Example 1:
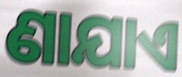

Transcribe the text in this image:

ଣାଯାଏ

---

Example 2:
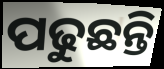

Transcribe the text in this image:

ପଢୁଛନ୍ତି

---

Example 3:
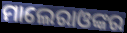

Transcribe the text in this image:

ମାଲେରାଓଙ୍କର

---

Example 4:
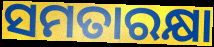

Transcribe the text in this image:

ସମତାରକ୍ଷା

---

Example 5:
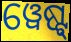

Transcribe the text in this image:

ୱେଷ୍ଟ୍